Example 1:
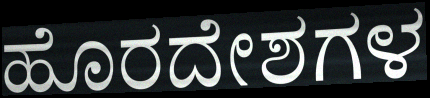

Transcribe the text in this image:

ಹೊರದೇಶಗಳ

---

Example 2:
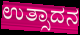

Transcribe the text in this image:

ಉತ್ಸಾದನ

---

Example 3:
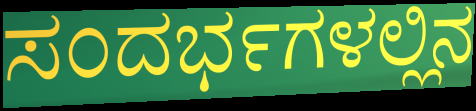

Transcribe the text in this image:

ಸಂದರ್ಭಗಳಲ್ಲಿನ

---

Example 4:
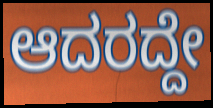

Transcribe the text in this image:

ಆದರದ್ದೇ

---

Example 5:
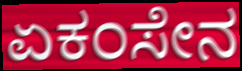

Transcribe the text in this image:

ಏಕಂಸೇನ